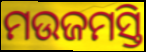
ମଉଜମସ୍ତି